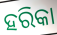
ହରିକା